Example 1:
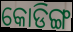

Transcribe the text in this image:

କୋଡିଙ୍ଗ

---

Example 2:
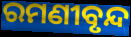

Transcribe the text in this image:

ରମଣୀବୃନ୍ଦ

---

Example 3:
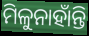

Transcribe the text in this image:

ମିଳୁନାହାଁନ୍ତି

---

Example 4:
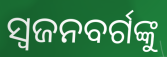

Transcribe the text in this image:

ସ୍ଵଜନବର୍ଗଙ୍କୁ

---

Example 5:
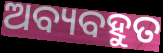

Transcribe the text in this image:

ଅବ୍ୟବହୁତ